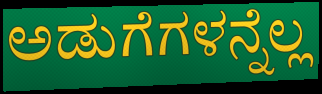
ಅಡುಗೆಗಳನ್ನೆಲ್ಲ